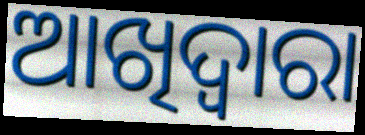
ଆଖିଦ୍ୱାରା